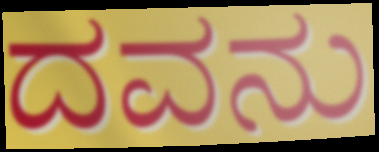
ದವನು